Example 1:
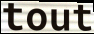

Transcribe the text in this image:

tout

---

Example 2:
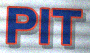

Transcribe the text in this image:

PIT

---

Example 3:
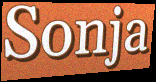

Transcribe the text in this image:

Sonja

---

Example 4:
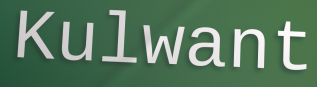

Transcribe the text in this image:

Kulwant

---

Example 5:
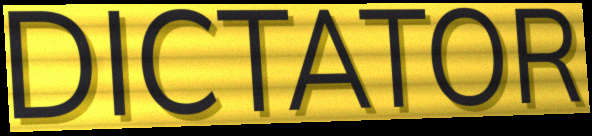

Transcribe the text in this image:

DICTATOR